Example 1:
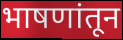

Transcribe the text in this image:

भाषणांतून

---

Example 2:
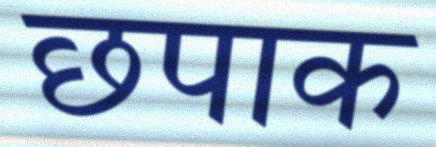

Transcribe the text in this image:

छपाक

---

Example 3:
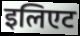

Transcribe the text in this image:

इलिएट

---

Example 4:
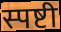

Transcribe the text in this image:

स्पष्टी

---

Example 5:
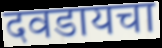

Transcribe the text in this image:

दवडायचा